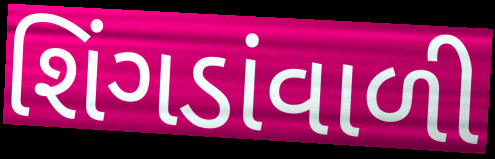
શિંગડાંવાળી